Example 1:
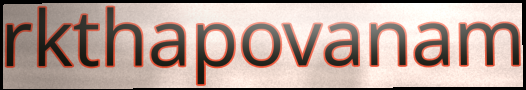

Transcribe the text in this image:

rkthapovanam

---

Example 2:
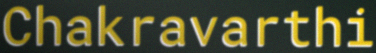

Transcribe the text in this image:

Chakravarthi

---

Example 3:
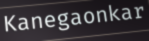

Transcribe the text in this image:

Kanegaonkar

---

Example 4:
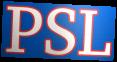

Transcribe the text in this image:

PSL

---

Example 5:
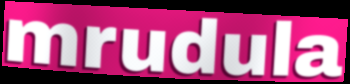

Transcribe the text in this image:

mrudula